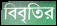
বিবৃতির